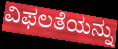
ವಿಫಲತೆಯನ್ನು